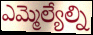
ఎమ్మెల్యేల్ని